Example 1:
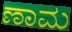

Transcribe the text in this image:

ಣಾಮ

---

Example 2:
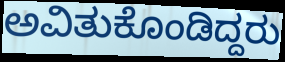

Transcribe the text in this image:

ಅವಿತುಕೊಂಡಿದ್ದರು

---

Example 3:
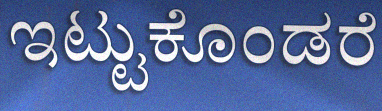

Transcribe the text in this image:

ಇಟ್ಟುಕೊಂಡರೆ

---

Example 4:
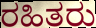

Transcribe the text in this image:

ರಹಿತರು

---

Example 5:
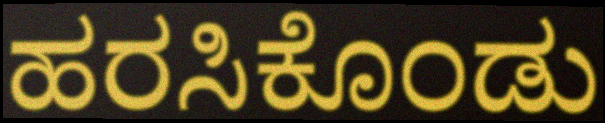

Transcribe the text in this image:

ಹರಸಿಕೊಂಡು